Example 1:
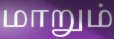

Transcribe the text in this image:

மாறும்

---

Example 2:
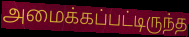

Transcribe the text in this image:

அமைக்கப்பட்டிருந்த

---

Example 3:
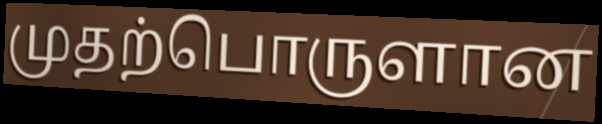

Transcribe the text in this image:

முதற்பொருளான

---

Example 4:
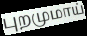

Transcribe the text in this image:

புறமுமாய்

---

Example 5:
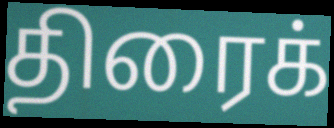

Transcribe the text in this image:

திரைக்